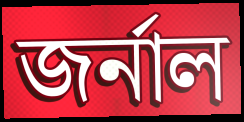
জৰ্নাল